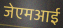
जेएमआई